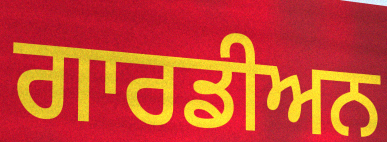
ਗਾਰਡੀਅਨ